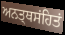
ਅਨਤ੍ਥਸਂਹਿਤਂ